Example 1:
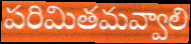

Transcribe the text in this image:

పరిమితమవ్వాలి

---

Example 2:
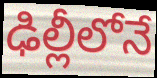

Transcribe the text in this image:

ఢిల్లీలోనే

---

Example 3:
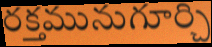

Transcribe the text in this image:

రక్తమునుగూర్చి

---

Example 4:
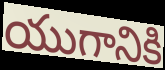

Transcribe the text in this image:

యుగానికి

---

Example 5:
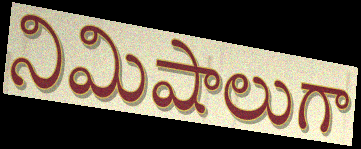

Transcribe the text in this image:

నిమిషాలుగా